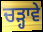
ਚੜ੍ਹਾਵੇ